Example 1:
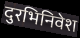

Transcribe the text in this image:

दुरभिनिवेश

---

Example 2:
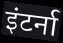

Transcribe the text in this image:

इंटर्ना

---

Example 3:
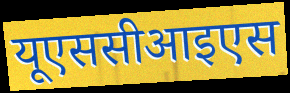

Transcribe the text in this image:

यूएससीआइएस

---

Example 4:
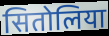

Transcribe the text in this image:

सितोलिया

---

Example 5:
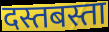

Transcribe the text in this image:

दस्तबस्ता